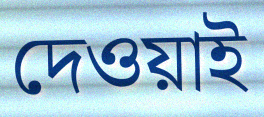
দেওয়াই